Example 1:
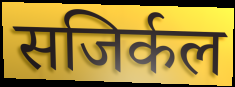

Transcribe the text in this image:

सजिर्कल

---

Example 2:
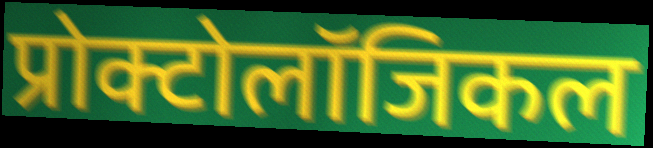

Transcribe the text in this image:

प्रोक्टोलॉजिकल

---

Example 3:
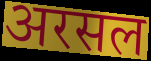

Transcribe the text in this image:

अरसल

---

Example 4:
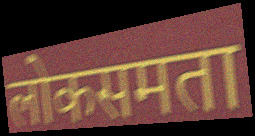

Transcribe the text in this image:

लोकसमता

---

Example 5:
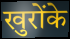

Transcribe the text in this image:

खुरोंके